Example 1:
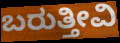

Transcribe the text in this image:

ಬರುತ್ತೀವಿ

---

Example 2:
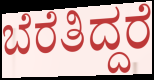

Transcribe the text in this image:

ಬೆರೆತಿದ್ದರೆ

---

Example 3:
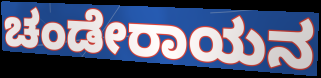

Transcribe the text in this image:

ಚಂಡೇರಾಯನ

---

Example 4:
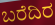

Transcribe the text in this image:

ಬರೆದಿರ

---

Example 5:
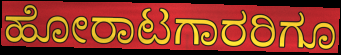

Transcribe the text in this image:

ಹೋರಾಟಗಾರರಿಗೂ